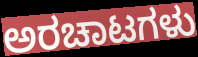
ಅರಚಾಟಗಳು